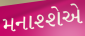
મનાશ્શેએ